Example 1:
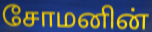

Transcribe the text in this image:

சோமனின்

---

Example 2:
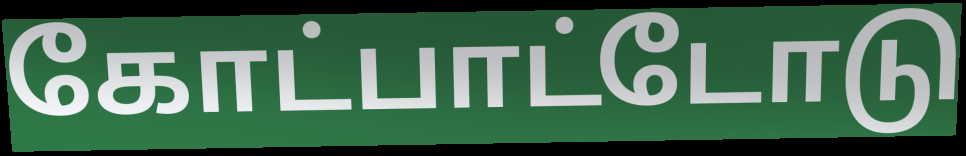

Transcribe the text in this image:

கோட்பாட்டோடு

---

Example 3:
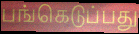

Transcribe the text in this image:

பங்கெடுப்பது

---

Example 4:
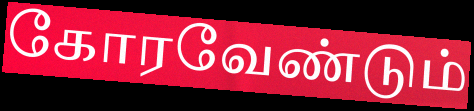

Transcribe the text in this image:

கோரவேண்டும்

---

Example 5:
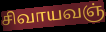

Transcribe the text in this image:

சிவாயவஞ்